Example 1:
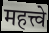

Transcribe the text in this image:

महत्त्वे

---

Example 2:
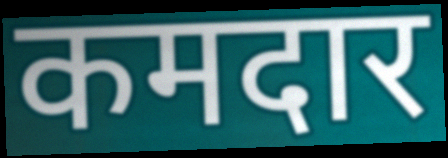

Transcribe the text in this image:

कमदार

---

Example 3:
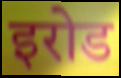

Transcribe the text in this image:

इरोड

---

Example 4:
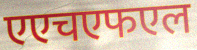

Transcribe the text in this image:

एएचएफएल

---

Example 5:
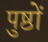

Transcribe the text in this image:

पुष्ठों